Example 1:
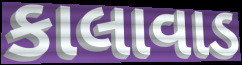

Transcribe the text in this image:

કાલાવાડ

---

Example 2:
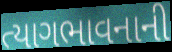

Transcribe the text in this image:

ત્યાગભાવનાની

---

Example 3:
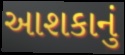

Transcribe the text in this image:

આશકાનું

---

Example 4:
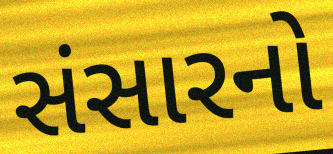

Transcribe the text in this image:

સંસારનો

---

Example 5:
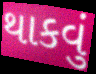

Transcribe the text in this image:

થાકવું